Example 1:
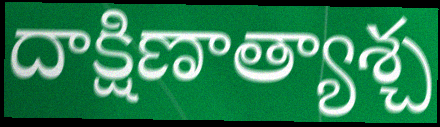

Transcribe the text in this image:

దాక్షిణాత్యాశ్చ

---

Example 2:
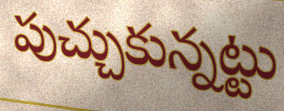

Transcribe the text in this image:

పుచ్చుకున్నట్టు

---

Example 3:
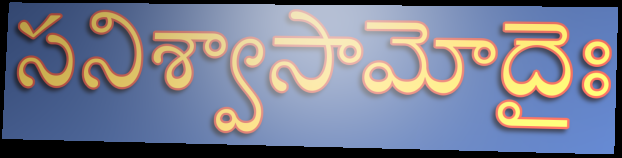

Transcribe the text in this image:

సనిశ్వాసామోదైః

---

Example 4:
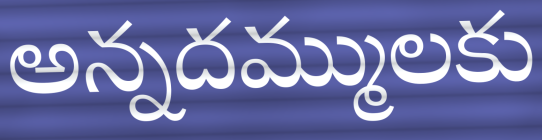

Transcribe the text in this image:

అన్నదమ్ములకు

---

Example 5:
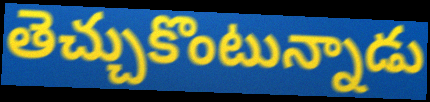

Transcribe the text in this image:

తెచ్చుకొంటున్నాడు